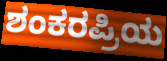
ಶಂಕರಪ್ರಿಯ